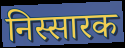
निस्सारक